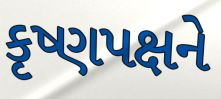
કૃષ્ણપક્ષને